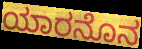
ಯಾರನೊನ